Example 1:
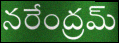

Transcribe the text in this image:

నరేంద్రమ్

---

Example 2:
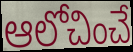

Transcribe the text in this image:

ఆలోచించే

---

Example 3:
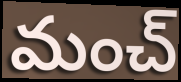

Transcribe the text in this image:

మంచ్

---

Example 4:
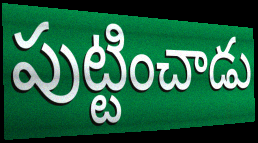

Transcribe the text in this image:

పుట్టించాడు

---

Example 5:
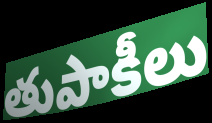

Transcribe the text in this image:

తుపాకీలు